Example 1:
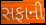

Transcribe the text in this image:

સફાની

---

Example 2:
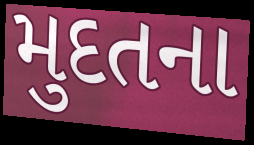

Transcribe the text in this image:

મુદતના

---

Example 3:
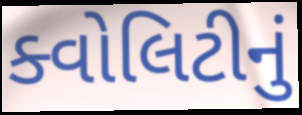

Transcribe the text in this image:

ક્વોલિટીનું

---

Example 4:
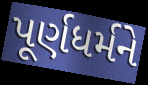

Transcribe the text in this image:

પૂર્ણધર્મને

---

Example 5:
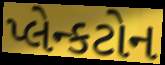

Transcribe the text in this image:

પ્લેન્કટોન